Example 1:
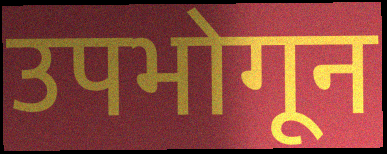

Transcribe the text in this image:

उपभोगून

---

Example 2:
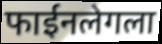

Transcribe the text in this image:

फाईनलेगला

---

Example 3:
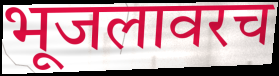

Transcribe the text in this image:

भूजलावरच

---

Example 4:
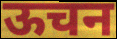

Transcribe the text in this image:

ऊचन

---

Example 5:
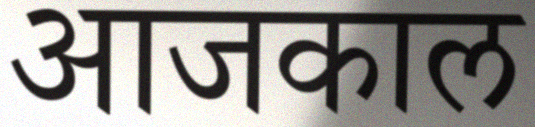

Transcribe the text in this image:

आजकाल